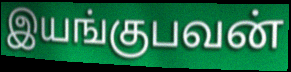
இயங்குபவன்